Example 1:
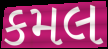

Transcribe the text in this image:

કમલ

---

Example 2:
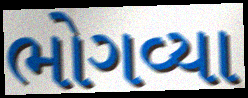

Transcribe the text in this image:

ભોગવ્યા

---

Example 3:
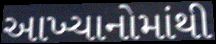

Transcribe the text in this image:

આખ્યાનોમાંથી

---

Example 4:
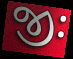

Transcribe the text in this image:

જીઃ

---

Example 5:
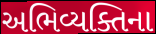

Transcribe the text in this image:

અભિવ્યક્તિના